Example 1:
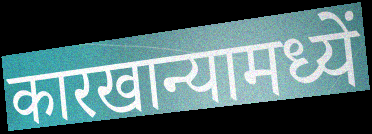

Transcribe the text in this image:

कारखान्यामध्यें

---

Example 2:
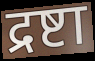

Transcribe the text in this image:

द्रष्टा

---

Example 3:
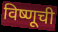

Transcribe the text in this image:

विष्णूची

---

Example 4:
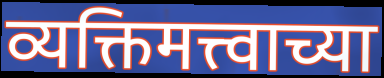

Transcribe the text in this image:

व्यक्तिमत्त्वाच्या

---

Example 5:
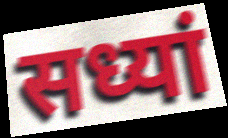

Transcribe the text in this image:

सध्यां